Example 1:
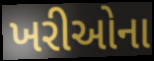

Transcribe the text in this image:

ખરીઓના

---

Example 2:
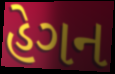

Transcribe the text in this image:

હેગન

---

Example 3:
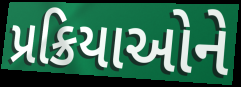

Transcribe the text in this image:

પ્રક્રિયાઓને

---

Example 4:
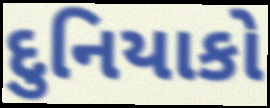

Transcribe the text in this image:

દુનિયાકો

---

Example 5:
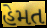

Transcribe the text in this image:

હેમત